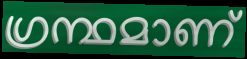
ഗ്രന്ഥമാണ്